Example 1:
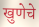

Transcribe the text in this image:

खुणेचे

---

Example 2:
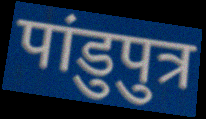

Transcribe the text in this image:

पांडुपुत्र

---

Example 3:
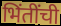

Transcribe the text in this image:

भिंतींची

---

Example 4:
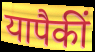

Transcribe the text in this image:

यापैकीं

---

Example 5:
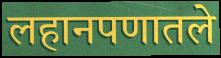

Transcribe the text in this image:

लहानपणातले